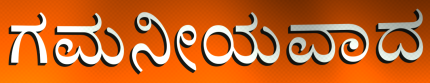
ಗಮನೀಯವಾದ